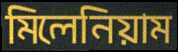
মিলেনিয়াম